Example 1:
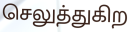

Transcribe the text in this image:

செலுத்துகிற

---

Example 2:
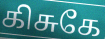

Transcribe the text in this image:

கிசுகே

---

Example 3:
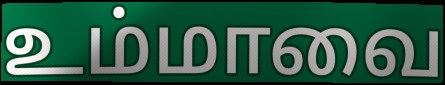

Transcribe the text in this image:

உம்மாவை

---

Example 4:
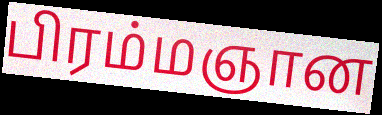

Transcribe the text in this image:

பிரம்மஞான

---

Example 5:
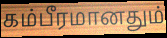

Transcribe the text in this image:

கம்பீரமானதும்